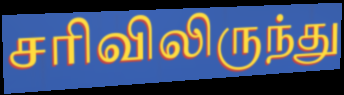
சரிவிலிருந்து